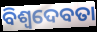
ବିଶ୍ୱଦେବତା